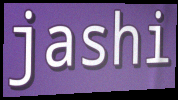
jashi